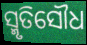
ସ୍ମୃତିସୌଧ